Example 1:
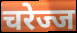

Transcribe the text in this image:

चरेज्ज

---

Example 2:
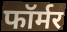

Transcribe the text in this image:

फॉर्मर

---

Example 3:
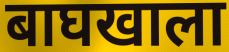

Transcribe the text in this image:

बाघखाला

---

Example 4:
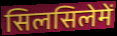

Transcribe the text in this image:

सिलसिलेमें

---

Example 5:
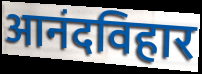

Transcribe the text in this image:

आनंदविहार